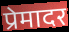
प्रेमादर